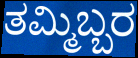
ತಮ್ಮಿಬ್ಬರ